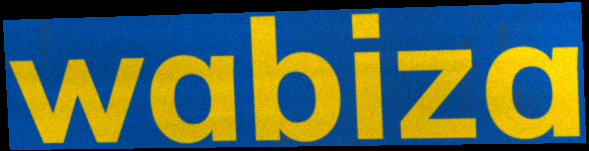
wabiza